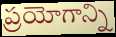
ప్రయోగాన్ని